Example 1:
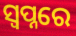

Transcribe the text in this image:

ସ୍ୱପ୍ନରେ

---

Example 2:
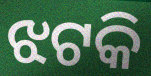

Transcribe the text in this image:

ଝଟକି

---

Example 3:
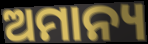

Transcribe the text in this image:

ଅମାନ୍ୟ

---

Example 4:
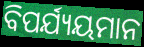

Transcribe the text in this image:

ବିପର୍ଯ୍ୟୟମାନ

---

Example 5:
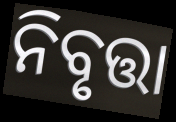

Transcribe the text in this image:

ନିବୃତ୍ତା